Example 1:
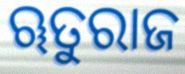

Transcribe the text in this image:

ୠତୁରାଜ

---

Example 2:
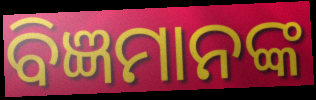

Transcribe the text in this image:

ବିଜ୍ଞମାନଙ୍କ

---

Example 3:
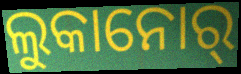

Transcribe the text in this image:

ଲୁକାନୋର୍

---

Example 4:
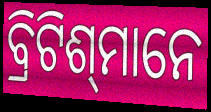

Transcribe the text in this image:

ବ୍ରିଟିଶ୍‌ମାନେ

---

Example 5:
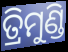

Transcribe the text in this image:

ତ୍ରିମୁଣ୍ଡି